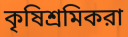
কৃষিশ্রমিকরা